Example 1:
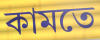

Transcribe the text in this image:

কামতে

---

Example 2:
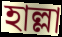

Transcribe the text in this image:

হাল্লা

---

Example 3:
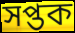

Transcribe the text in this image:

সপ্তক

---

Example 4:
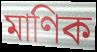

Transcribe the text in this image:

মাণিক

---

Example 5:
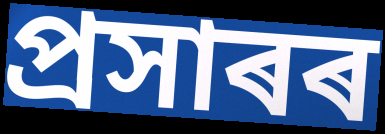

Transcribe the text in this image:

প্ৰসাৰৰ